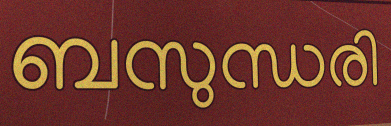
ബസുന്ധരി